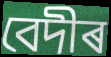
বেদীৰ